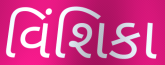
વિંશિકા